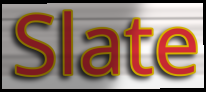
Slate